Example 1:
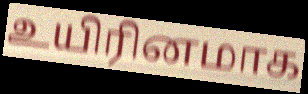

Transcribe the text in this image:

உயிரினமாக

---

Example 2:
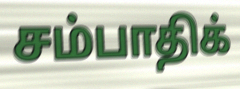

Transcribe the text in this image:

சம்பாதிக்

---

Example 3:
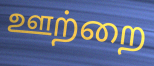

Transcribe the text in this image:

ஊற்றை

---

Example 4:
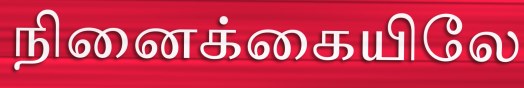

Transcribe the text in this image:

நினைக்கையிலே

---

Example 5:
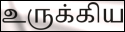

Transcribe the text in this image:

உருக்கிய